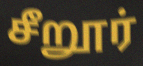
சீறூர்